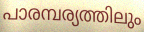
പാരമ്പര്യത്തിലും